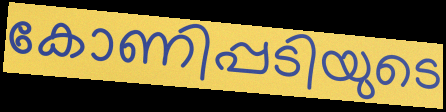
കോണിപ്പടിയുടെ